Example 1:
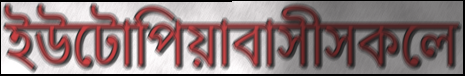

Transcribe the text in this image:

ইউটোপিয়াবাসীসকলে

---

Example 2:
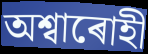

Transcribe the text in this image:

অশ্বাৰোহী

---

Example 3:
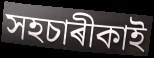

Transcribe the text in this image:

সহচাৰীকাই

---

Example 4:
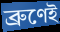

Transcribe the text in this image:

ব্ৰুণেই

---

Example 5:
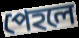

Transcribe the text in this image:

পেহলে